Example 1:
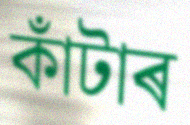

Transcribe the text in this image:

কাঁটাৰ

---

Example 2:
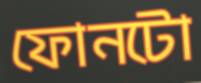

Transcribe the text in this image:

ফোনটো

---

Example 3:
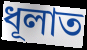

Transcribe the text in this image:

ধূলাত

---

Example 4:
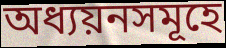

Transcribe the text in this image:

অধ্যয়নসমূহে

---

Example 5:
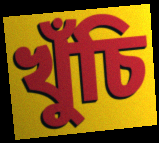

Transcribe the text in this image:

খুঁচি